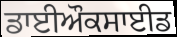
ਡਾਈਔਕਸਾਈਡ